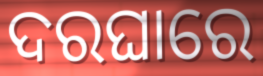
ଦରଘାରେ